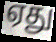
ஏது